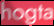
hogta